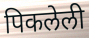
पिकलेली